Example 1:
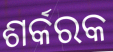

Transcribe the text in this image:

ଶର୍କରକ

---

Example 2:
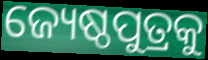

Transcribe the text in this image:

ଜ୍ୟେଷ୍ଠପୁତ୍ରକୁ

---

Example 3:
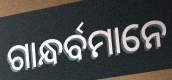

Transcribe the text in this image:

ଗାନ୍ଧର୍ବମାନେ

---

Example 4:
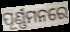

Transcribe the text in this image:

ପୂର୍ଣ୍ଣମନରେ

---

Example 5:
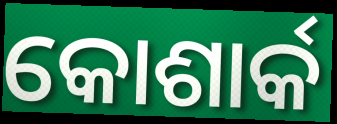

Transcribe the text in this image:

କୋଶାର୍କ